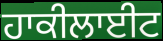
ਹਾਕੀਲਾਈਟ